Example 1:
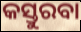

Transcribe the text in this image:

କସ୍ତୁରବା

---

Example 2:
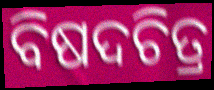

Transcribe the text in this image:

ବିଷଦଚିତ୍ର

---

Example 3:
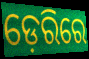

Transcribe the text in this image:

ଡ଼େରିରେ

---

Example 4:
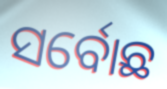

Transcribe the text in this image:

ସର୍ବୋଛ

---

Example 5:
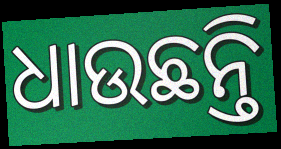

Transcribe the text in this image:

ଧାଉଛନ୍ତି